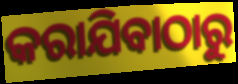
କରାଯିବାଠାରୁ